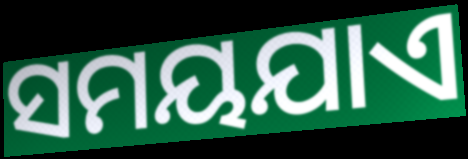
ସମୟଯାଏ